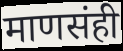
माणसंही